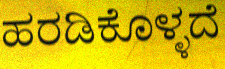
ಹರಡಿಕೊಳ್ಳದೆ